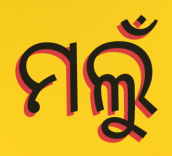
ମଲୁଁ